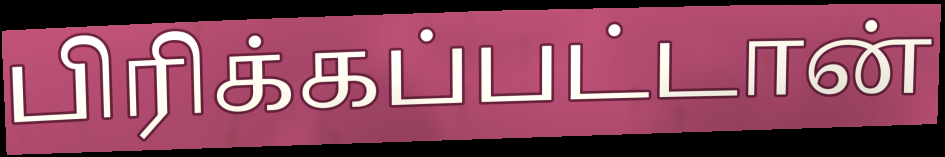
பிரிக்கப்பட்டான்